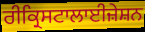
ਰੀਕ੍ਰਿਸਟਾਲਾਈਜ਼ੇਸ਼ਨ